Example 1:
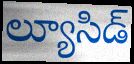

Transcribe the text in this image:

ల్యూసిడ్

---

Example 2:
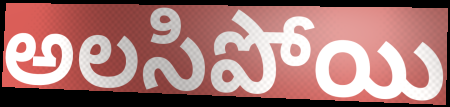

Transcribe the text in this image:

అలసిపోయి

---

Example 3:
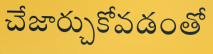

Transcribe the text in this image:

చేజార్చుకోవడంతో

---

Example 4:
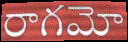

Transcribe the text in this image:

రాగమో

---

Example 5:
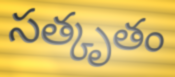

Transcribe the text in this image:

సత్కృతం